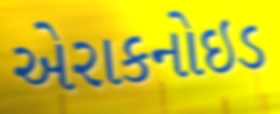
એરાકનોઇડ